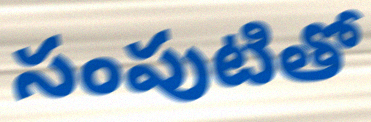
సంపుటితో